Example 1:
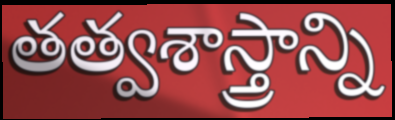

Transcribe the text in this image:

తత్వశాస్త్రాన్ని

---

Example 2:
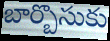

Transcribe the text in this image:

బార్బొసుకు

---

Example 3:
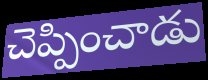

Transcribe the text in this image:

చెప్పించాడు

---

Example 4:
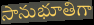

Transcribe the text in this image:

సానుభూతిగా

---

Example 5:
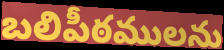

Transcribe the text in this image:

బలిపీఠములను